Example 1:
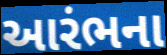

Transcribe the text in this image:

આરંભના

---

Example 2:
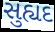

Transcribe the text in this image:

સુહ્યદ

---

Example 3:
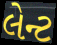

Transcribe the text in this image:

લેન્ટ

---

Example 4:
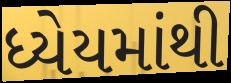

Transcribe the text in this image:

ધ્યેયમાંથી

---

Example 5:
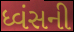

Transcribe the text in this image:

ધ્વંસની